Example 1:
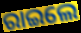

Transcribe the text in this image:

ରାଇଲେ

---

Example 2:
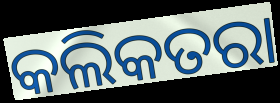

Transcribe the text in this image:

କଲିକତରା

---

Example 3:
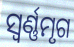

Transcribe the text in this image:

ସ୍ଵର୍ଣ୍ଣମୃଗ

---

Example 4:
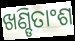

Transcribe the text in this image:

ଖଣ୍ଡିତାଂଶ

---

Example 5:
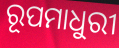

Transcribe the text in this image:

ରୂପମାଧୁରୀ